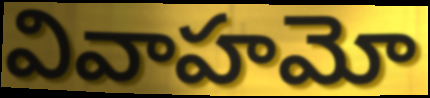
వివాహమో